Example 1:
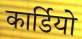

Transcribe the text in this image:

कार्डियो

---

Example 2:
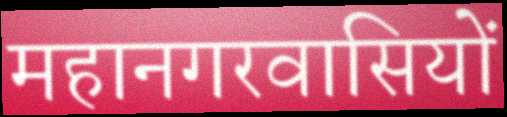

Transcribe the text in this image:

महानगरवासियों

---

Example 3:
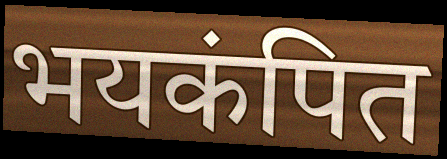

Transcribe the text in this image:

भयकंपित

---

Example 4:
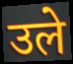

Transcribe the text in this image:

उले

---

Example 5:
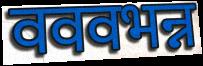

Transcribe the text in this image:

वववभन्न